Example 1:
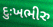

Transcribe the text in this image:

દુઃખભીરુ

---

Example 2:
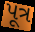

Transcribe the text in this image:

પૂત્ર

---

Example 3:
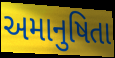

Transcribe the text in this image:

અમાનુષિતા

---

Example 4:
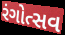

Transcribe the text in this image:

રંગોત્સવ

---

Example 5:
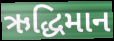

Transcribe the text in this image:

ઋદ્ધિમાન